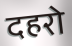
दहरो